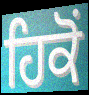
ਹਿਕੋਂ